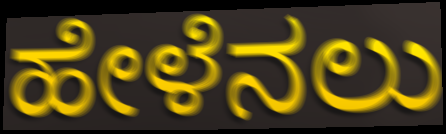
ಹೇಳೆನಲು